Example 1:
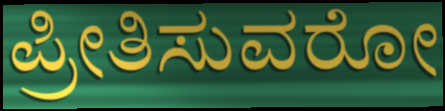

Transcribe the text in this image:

ಪ್ರೀತಿಸುವರೋ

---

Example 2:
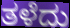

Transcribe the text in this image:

ತಳೆದು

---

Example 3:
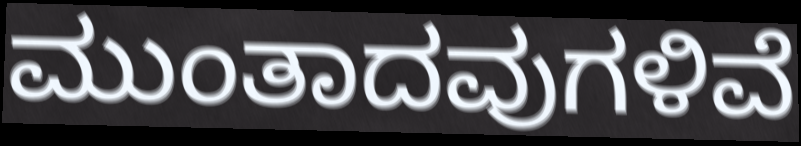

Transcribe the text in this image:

ಮುಂತಾದವುಗಳಿವೆ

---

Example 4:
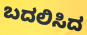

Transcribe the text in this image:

ಬದಲಿಸಿದ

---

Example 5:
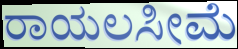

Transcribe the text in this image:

ರಾಯಲಸೀಮೆ